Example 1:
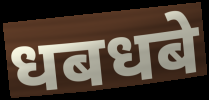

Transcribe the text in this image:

धबधबे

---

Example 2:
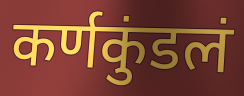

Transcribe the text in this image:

कर्णकुंडलं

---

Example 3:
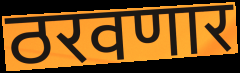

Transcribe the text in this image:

ठरवणार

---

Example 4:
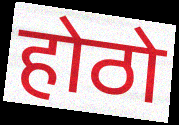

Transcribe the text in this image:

होठो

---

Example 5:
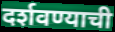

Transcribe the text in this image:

दर्शवण्याची